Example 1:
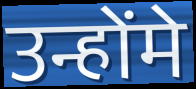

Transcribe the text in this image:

उन्होंमे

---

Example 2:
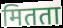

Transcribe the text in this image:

मितता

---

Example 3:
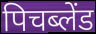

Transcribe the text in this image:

पिचब्लेंड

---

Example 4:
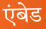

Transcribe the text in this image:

एंबेड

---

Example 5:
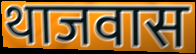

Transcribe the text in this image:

थाजवास